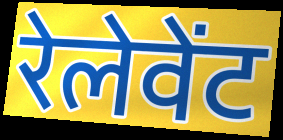
रेलेवेंट